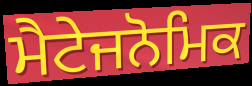
ਮੈਟੇਜਨੋਮਿਕ